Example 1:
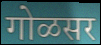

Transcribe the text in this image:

गोळसर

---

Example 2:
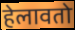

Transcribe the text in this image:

हेलावतो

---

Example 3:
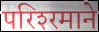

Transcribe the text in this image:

परिश्रमाने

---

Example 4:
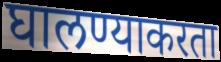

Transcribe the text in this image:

घालण्याकरता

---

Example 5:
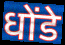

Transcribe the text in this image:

धोंडे